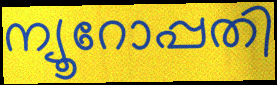
ന്യൂറോപ്പതി